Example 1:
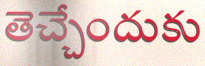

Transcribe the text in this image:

తెచ్చేందుకు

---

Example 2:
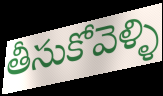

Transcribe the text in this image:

తీసుకోవెళ్ళి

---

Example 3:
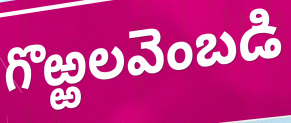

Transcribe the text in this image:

గొఱ్ఱలవెంబడి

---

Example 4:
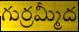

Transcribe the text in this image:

గుర్రమ్మీద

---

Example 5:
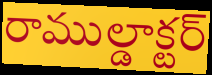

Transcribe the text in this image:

రాముల్డాక్టర్